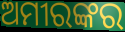
ଅମୀରଙ୍କର